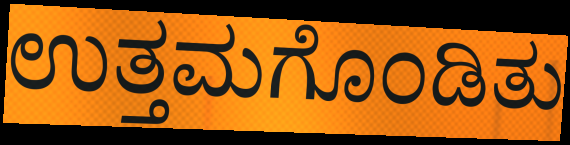
ಉತ್ತಮಗೊಂಡಿತು